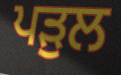
ਪੜੁਲ